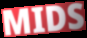
MIDS